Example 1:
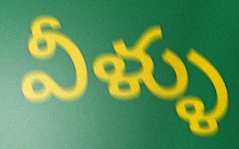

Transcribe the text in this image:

వీళ్ళు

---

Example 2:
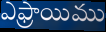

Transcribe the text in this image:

ఎఫ్రాయిము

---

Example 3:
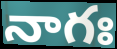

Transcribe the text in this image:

నాగః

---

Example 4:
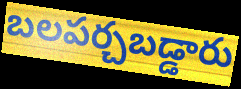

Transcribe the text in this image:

బలపర్చబడ్డారు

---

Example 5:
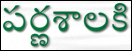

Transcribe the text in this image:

పర్ణశాలకి